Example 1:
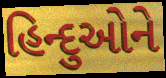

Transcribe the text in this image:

હિન્દુઓને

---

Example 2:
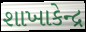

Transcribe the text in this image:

શાખાકેન્દ્ર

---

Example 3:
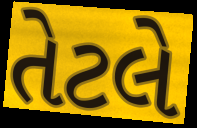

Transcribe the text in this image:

તેટલે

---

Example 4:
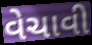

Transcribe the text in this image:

વેચાવી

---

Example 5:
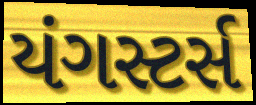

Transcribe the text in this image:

યંગસ્ટર્સ